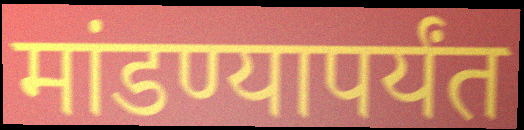
मांडण्यापर्यंत